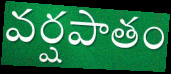
వర్షపాతం